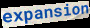
expansion